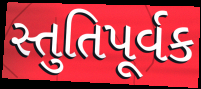
સ્તુતિપૂર્વક